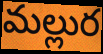
మల్లుర